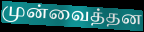
முன்வைத்தன